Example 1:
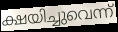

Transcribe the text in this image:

ക്ഷയിച്ചുവെന്ന്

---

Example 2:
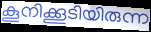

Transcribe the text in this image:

കൂനിക്കൂടിയിരുന്ന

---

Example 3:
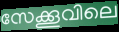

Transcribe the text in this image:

സേക്കൂവിലെ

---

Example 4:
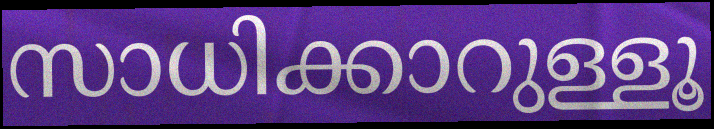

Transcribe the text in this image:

സാധിക്കാറുള്ളൂ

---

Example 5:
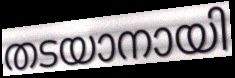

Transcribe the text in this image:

തടയാനായി